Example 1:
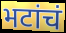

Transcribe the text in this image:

भटांचं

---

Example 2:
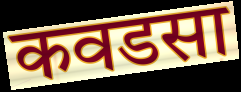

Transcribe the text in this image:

कवडसा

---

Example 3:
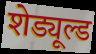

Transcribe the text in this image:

शेड्यूल्ड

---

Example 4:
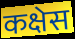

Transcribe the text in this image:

कक्षेस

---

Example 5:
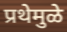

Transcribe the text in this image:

प्रथेमुळे